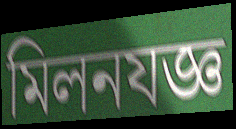
মিলনযজ্ঞ